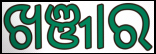
ଖଞ୍ଜାର